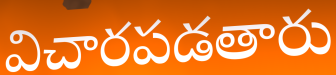
విచారపడతారు